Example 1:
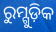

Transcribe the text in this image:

ରୁମ୍ଗୁଡ଼ିକ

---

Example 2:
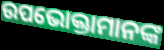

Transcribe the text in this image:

ଉପଭୋକ୍ତାମାନଙ୍କ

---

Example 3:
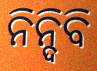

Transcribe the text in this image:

ନିନ୍ଦିବି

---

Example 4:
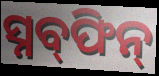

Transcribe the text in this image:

ସ୍ନବ୍‍ଫିନ୍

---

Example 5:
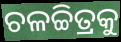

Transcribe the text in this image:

ଚଳଚ୍ଚିତ୍ରକୁ